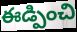
ఈడ్పించి